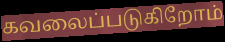
கவலைப்படுகிறோம்